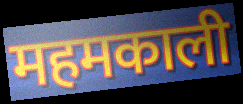
महमकाली